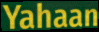
Yahaan